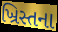
ખ્રિસ્તના